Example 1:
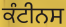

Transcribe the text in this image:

ਕੰਟੀਨਸ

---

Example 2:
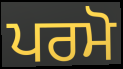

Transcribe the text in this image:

ਪਰਮੋ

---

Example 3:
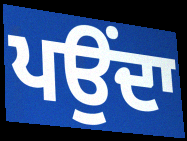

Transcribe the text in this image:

ਪਉਂਦਾ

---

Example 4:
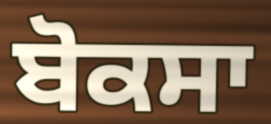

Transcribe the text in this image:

ਬੋਕਸਾ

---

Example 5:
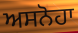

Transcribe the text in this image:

ਅਸਨੋਹਾ